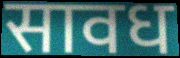
सावध